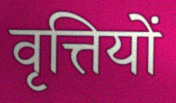
वृत्तियों